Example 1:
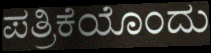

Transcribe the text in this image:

ಪತ್ರಿಕೆಯೊಂದು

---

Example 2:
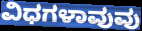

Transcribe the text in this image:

ವಿಧಗಳಾವುವು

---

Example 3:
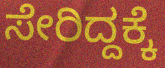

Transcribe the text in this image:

ಸೇರಿದ್ದಕ್ಕೆ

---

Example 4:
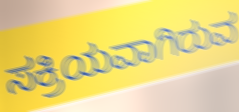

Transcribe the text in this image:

ಸಕ್ರಿಯವಾಗಿರುವ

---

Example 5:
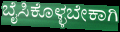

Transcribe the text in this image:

ಬೈಸಿಕೊಳ್ಳಬೇಕಾಗಿ